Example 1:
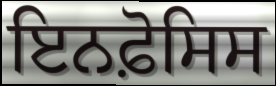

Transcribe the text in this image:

ਇਨਫ਼ੋਸਿਸ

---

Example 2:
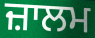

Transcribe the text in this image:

ਜ਼ਾਲਮ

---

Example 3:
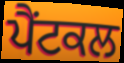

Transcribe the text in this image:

ਪੈਂਟਕਲ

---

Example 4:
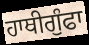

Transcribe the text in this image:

ਹਾਥੀਗੁੰਫਾ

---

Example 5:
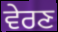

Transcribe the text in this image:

ਵੇਰਣ